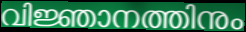
വിജ്ഞാനത്തിനും